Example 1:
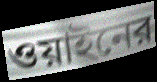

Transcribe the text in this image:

ওয়াইনের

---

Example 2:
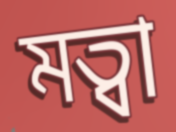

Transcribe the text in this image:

মত্বা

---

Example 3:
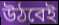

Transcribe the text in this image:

উঠবেই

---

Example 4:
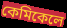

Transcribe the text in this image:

কেমিকেলে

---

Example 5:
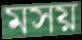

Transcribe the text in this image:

মসয়